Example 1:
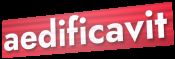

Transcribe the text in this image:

aedificavit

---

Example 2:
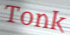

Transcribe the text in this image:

Tonk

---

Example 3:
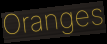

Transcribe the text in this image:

Oranges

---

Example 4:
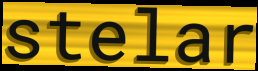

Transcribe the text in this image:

stelar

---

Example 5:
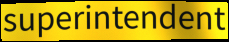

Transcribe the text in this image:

superintendent